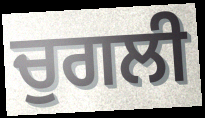
ਚੁਗਲੀ